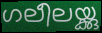
ഗലീലയ്ക്കു